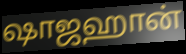
ஷாஜஹான்